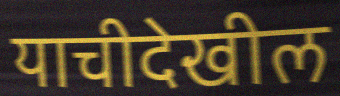
याचीदेखील